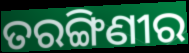
ତରଙ୍ଗିଣୀର